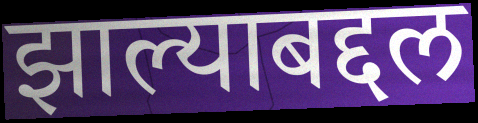
झाल्याबद्दल